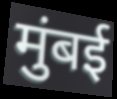
मुंबई